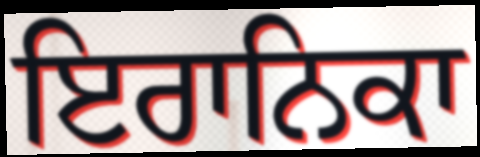
ਇਰਾਨਿਕਾ